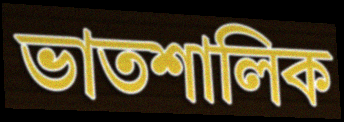
ভাতশালিক